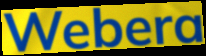
Webera